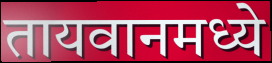
तायवानमध्ये